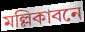
মল্লিকাবনে